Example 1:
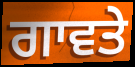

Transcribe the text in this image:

ਗਾਵਤੇ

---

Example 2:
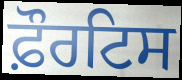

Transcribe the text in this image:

ਫ਼ੌਰਟਿਸ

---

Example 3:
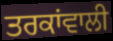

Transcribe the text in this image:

ਤਰਕਾਂਵਾਲੀ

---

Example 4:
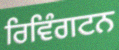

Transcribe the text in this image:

ਰਿਵਿੰਗਟਨ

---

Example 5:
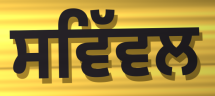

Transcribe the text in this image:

ਸਵਿੱਵਲ